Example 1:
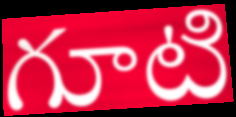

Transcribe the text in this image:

గూటి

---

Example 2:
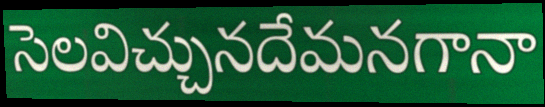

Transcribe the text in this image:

సెలవిచ్చునదేమనగానా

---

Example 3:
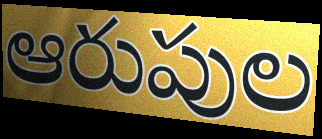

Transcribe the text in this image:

ఆరుపుల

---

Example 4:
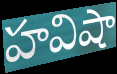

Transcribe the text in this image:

హవిషా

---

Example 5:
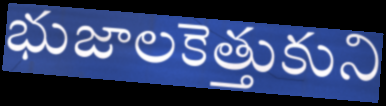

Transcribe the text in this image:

భుజాలకెత్తుకుని